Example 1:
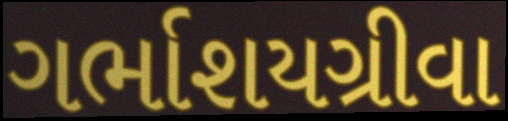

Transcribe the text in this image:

ગર્ભાશયગ્રીવા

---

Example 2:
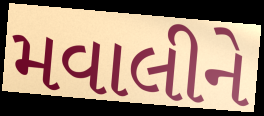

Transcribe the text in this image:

મવાલીને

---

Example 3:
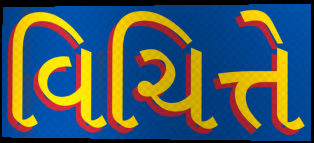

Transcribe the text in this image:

વિચિત્તે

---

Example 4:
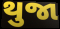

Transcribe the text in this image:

થુજા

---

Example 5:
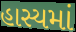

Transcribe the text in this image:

હાસ્યમાં